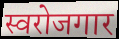
स्वरोजगार